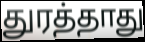
துரத்தாது